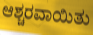
ಆಶ್ಚರವಾಯಿತು